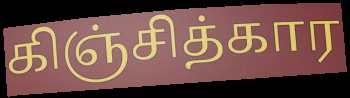
கிஞ்சித்கார